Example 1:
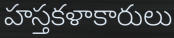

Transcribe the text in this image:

హస్తకళాకారులు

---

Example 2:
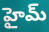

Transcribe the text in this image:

హైమ్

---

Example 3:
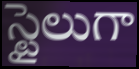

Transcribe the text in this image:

స్టైలుగా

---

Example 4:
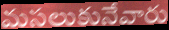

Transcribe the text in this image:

మసలుకునేవారు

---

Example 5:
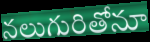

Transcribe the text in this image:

నలుగురితోనూ